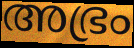
അഭ്രം